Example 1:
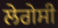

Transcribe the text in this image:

ਲੇਗੇਸੀ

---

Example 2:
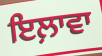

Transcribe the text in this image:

ਇਲ਼ਾਵਾ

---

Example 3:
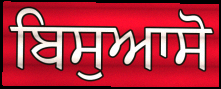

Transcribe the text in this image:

ਬਿਸੁਆਸੋ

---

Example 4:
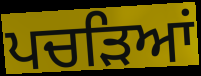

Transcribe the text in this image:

ਪਚੜਿਆਂ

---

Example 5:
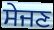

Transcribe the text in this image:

ਸੇਜਣ